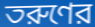
তরুণের